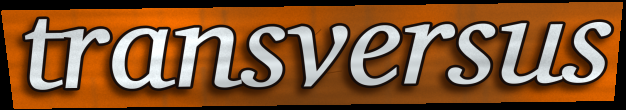
transversus